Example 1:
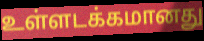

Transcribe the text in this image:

உள்ளடக்கமானது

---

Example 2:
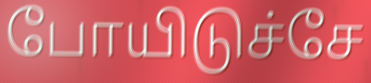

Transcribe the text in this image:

போயிடுச்சே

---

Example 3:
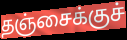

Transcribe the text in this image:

தஞ்சைக்குச்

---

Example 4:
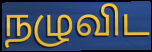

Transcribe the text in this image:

நழுவிட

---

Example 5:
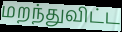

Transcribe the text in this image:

மறந்துவிட்ட